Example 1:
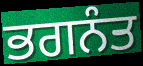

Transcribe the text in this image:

ਭਗਨੰਤ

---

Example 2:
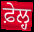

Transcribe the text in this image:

ਫ਼ੇਲ੍ਹ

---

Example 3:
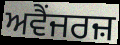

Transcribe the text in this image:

ਅਵੈਂਜਰਜ਼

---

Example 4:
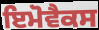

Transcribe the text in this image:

ਇਮੋਵੈਕਸ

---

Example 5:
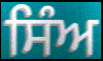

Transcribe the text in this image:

ਸਿੰਅ